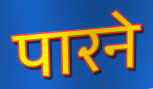
पारने